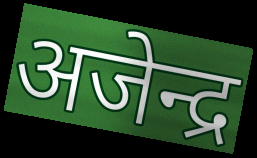
अजेन्द्र